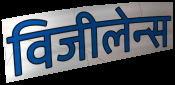
विजीलेन्स